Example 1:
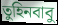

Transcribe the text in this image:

তুহিনবাবু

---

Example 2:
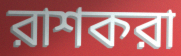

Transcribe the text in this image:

রাশকরা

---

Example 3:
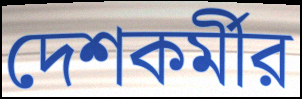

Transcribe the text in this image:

দেশকর্মীর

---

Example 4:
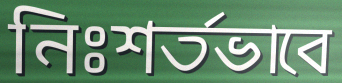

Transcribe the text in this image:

নিঃশর্তভাবে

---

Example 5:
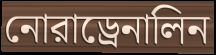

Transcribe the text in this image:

নোরাড্রেনালিন